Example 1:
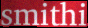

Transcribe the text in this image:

smithi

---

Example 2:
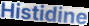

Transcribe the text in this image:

Histidine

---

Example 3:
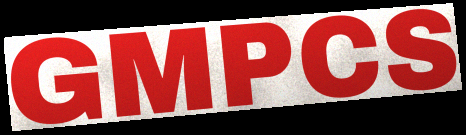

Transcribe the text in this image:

GMPCS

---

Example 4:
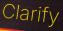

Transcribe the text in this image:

Clarify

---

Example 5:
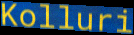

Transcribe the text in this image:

Kolluri